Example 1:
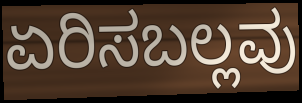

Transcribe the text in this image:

ಏರಿಸಬಲ್ಲವು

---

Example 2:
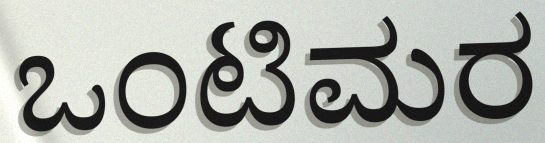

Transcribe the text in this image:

ಒಂಟಿಮರ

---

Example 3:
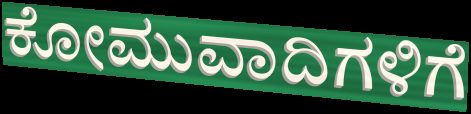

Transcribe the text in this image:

ಕೋಮುವಾದಿಗಳಿಗೆ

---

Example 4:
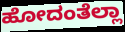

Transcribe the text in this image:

ಹೋದಂತೆಲ್ಲಾ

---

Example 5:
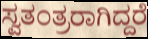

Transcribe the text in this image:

ಸ್ವತಂತ್ರರಾಗಿದ್ದರೆ